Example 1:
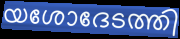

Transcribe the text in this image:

യശോദേടത്തി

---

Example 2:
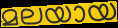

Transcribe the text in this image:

മലയായ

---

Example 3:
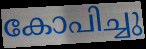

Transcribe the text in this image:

കോപിച്ചു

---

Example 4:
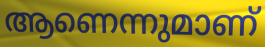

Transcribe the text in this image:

ആണെന്നുമാണ്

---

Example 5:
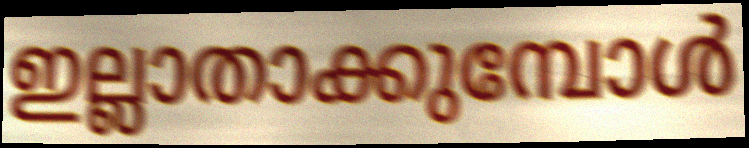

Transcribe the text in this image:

ഇല്ലാതാക്കുമ്പോൾ